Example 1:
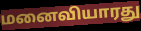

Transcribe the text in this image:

மனைவியாரது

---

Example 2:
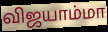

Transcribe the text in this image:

விஜயாம்மா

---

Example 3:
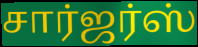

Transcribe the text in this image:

சார்ஜர்ஸ்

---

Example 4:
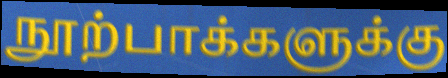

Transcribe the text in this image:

நூற்பாக்களுக்கு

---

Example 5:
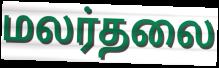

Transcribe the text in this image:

மலர்தலை